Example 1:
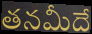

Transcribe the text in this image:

తనమీదే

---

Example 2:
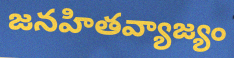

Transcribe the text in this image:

జనహితవ్యాజ్యం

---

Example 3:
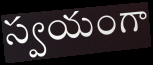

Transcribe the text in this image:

స్వయంగా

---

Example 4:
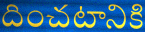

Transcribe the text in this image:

దించటానికి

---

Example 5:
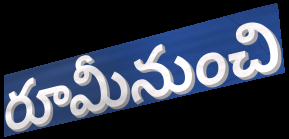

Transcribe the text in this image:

రూమీనుంచి